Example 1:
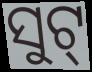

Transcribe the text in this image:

ସୁଟ୍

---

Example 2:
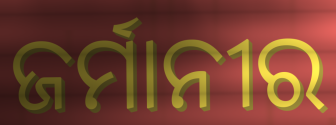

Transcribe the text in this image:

ଜର୍ମାନୀର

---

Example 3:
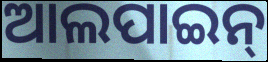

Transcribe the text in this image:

ଆଲପାଇନ୍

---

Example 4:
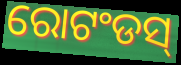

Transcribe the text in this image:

ରୋଟଂଡସ୍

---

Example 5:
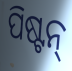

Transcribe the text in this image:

ପିଷ୍ଟନ୍